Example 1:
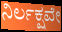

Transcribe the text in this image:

ನಿರ್ಲಕ್ಷವೇ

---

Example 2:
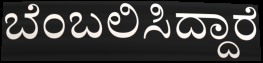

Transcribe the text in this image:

ಬೆಂಬಲಿಸಿದ್ದಾರೆ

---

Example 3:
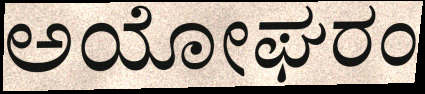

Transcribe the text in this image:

ಅಯೋಘರಂ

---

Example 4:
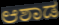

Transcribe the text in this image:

ಆಶಾಡ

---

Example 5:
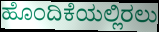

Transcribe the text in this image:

ಹೊಂದಿಕೆಯಲ್ಲಿರಲು